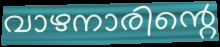
വാഴനാരിന്റെ